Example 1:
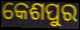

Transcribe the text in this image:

କେଶପୁର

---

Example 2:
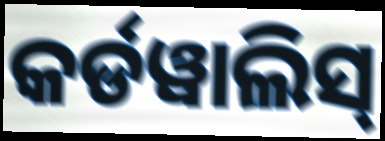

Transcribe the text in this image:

କର୍ଡୱାଲିସ୍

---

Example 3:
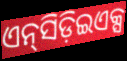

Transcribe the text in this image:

ଏନ୍‍ସିଡ଼ିଇଏକ୍ସ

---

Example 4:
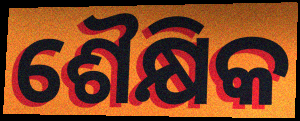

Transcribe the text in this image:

ଶୈକ୍ଷିକ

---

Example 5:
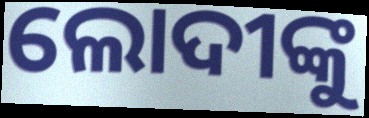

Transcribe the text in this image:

ଲୋଦୀଙ୍କୁ